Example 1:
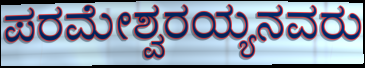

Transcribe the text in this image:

ಪರಮೇಶ್ವರಯ್ಯನವರು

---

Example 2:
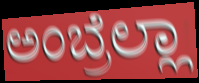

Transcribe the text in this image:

ಅಂಬ್ರೆಲ್ಲಾ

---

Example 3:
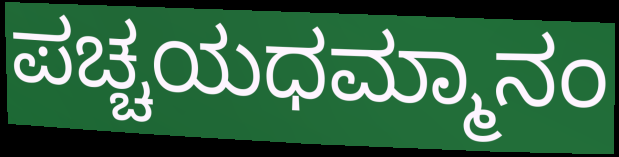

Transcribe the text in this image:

ಪಚ್ಚಯಧಮ್ಮಾನಂ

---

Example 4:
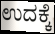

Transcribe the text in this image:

ಉದಕ್ಕೆ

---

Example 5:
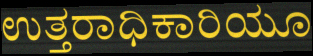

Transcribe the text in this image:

ಉತ್ತರಾಧಿಕಾರಿಯೂ